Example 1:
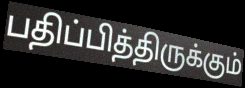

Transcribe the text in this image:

பதிப்பித்திருக்கும்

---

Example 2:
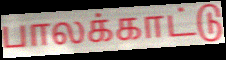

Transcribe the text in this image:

பாலக்காட்டு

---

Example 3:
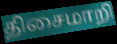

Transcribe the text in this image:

திசைமாறி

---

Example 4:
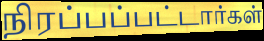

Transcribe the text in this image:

நிரப்பப்பட்டார்கள்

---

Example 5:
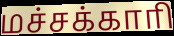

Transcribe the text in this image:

மச்சக்காரி